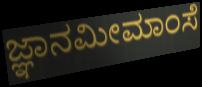
ಜ್ಞಾನಮೀಮಾಂಸೆ